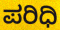
ಪರಿಧಿ